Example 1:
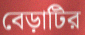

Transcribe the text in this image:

বেড়াটির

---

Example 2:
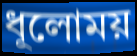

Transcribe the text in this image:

ধূলোময়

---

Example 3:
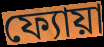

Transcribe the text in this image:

ফ্যোয়া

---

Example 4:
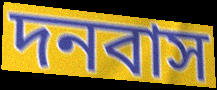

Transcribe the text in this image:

দনবাস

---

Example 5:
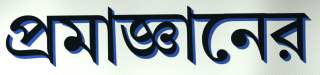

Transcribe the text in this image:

প্রমাজ্ঞানের